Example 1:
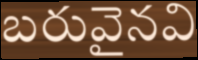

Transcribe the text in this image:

బరువైనవి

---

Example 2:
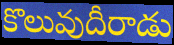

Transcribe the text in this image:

కొలువుదీరాడు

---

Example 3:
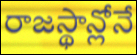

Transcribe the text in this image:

రాజస్థాన్లోనే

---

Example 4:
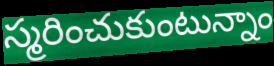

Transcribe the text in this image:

స్మరించుకుంటున్నాం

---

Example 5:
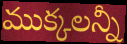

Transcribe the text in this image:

ముక్కలన్నీ